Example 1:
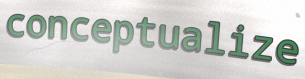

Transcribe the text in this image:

conceptualize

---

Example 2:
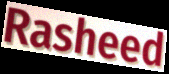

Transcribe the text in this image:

Rasheed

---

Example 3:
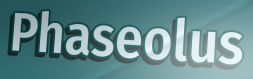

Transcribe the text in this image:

Phaseolus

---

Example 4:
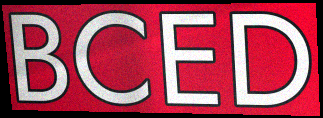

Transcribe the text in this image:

BCED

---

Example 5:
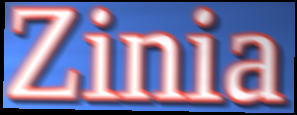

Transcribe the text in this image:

Zinia